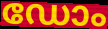
ഡോം